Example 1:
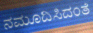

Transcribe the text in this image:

ನಮೂದಿಸಿದಂತೆ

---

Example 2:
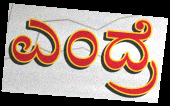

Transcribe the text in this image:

ಎಂದ್ರೆ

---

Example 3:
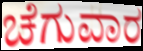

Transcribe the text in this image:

ಚೆಗುವಾರ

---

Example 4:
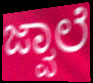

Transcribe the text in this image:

ಜ್ವಾಲೆ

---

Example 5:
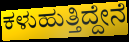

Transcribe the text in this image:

ಕಳುಹುತ್ತಿದ್ದೇನೆ